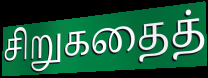
சிறுகதைத்